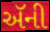
ઍની